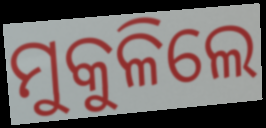
ମୁକୁଳିଲେ